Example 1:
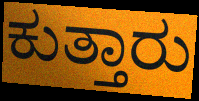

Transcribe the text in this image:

ಕುತ್ತಾರು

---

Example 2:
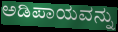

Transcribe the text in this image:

ಅಡಿಪಾಯವನ್ನು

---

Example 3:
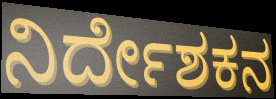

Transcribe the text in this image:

ನಿರ್ದೇಶಕನ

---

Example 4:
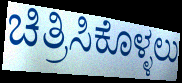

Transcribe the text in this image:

ಚಿತ್ರಿಸಿಕೊಳ್ಳಲು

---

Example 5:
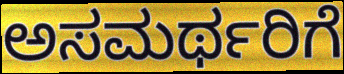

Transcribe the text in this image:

ಅಸಮರ್ಥರಿಗೆ